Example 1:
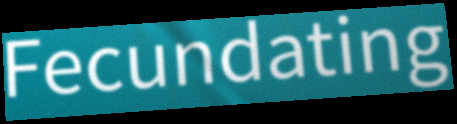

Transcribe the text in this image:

Fecundating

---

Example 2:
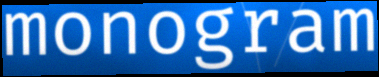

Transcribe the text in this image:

monogram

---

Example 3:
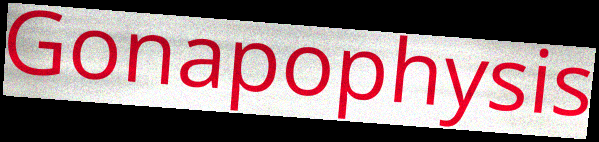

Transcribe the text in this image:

Gonapophysis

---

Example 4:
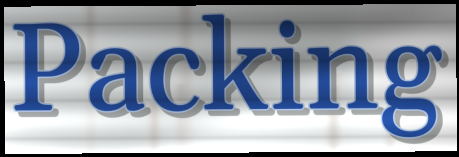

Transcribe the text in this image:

Packing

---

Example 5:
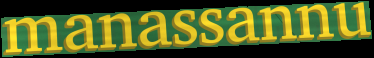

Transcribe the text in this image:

manassannu